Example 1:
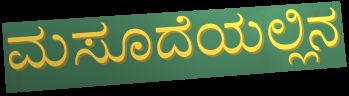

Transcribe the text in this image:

ಮಸೂದೆಯಲ್ಲಿನ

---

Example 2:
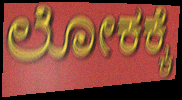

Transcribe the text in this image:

ಲೋಕಕ್ಕೆ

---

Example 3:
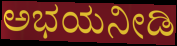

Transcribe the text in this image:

ಅಭಯನೀಡಿ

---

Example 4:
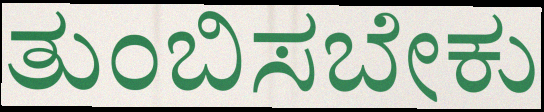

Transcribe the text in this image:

ತುಂಬಿಸಬೇಕು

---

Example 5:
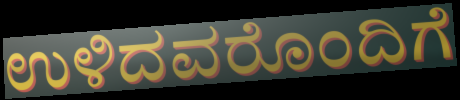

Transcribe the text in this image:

ಉಳಿದವರೊಂದಿಗೆ